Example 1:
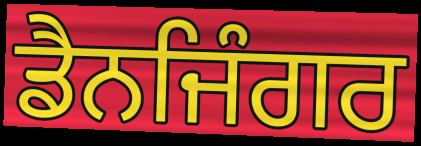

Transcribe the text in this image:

ਡੈਨਜਿੰਗਰ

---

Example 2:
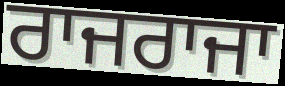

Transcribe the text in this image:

ਰਾਜਰਾਜਾ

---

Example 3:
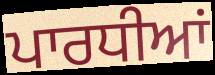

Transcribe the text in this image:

ਪਾਰਧੀਆਂ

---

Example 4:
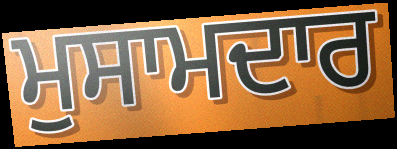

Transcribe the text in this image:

ਮੁਸਾਮਦਾਰ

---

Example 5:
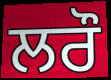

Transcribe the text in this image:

ਲਰੌ